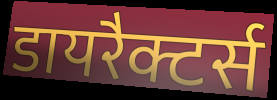
डायरैक्टर्स